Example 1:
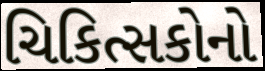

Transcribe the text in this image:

ચિકિત્સકોનો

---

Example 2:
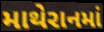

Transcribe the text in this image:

માથેરાનમાં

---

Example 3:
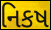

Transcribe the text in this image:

નિકષ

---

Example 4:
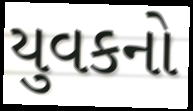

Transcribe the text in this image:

યુવકનો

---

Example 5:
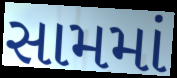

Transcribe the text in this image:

સામમાં